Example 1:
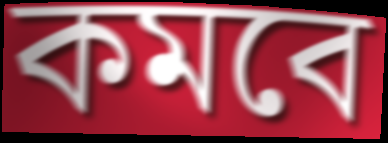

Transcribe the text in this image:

কমবে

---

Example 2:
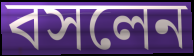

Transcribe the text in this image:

বসলেন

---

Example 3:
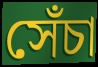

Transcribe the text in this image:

সেঁচা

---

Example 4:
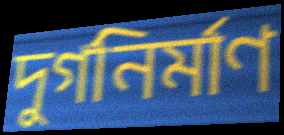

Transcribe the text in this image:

দুর্গনির্মাণ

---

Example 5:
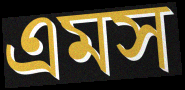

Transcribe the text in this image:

এমস